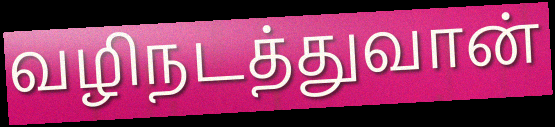
வழிநடத்துவான்